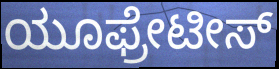
ಯೂಫ್ರೇಟೀಸ್